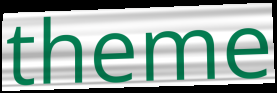
theme